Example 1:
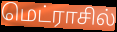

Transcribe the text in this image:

மெட்ராசில்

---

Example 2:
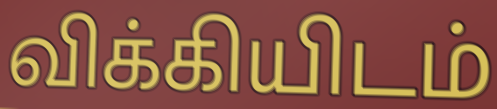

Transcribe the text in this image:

விக்கியிடம்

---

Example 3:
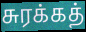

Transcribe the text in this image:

சுரக்கத்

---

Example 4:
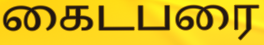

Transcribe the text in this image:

கைடபரை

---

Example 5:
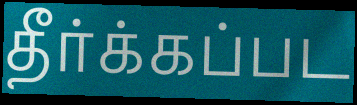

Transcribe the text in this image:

தீர்க்கப்பட